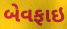
બેવફાઇ